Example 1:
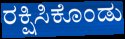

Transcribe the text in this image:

ರಕ್ಷಿಸಿಕೊಂಡು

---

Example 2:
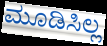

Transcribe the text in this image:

ಮೂಡಿಸಿಲ್ಲ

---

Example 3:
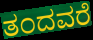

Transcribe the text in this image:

ತಂದವರೆ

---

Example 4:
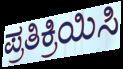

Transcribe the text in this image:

ಪ್ರತಿಕ್ರಿಯಿಸಿ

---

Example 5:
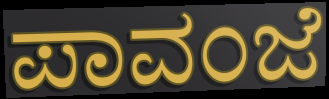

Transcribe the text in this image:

ಪಾವಂಜೆ